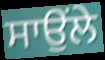
ਸਾਉਂਲੇ